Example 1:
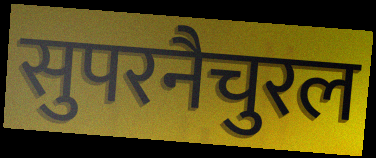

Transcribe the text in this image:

सुपरनैचुरल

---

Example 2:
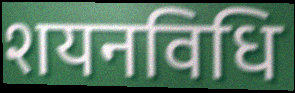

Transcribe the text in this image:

शयनविधि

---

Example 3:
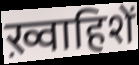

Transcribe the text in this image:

ख़्वाहिशें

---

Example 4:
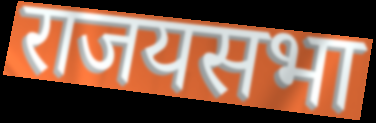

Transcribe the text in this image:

राजयसभा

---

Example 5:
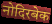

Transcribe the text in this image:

नोदिरबेक